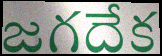
జగదేక